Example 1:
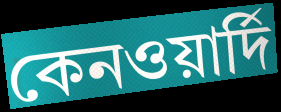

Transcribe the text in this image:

কেনওয়ার্দি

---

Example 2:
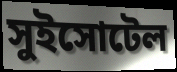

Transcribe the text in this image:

সুইসোটেল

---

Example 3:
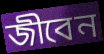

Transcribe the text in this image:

জীবেন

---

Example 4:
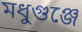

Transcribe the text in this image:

মধুগুঞ্জে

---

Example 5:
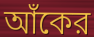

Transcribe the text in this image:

আঁকের